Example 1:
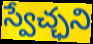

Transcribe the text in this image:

స్వేచ్ఛని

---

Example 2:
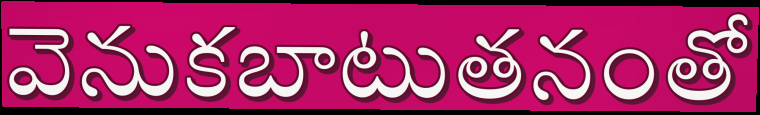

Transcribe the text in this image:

వెనుకబాటుతనంతో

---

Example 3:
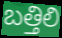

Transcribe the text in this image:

బత్తిలి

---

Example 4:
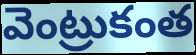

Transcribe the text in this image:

వెంట్రుకంత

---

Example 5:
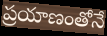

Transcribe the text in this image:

ప్రయాణంతోనే